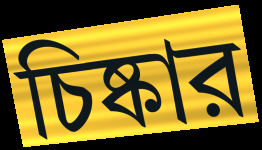
চিষ্কার